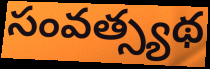
సంవత్స్యథ